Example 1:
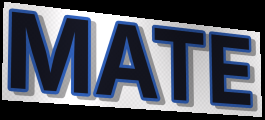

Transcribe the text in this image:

MATE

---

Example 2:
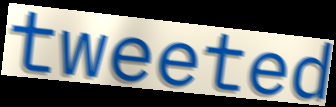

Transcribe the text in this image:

tweeted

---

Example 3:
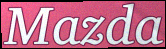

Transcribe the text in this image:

Mazda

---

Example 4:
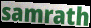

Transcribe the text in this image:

samrath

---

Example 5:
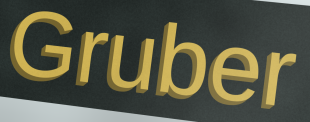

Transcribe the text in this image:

Gruber